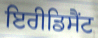
ਇਰੀਡਿਸੈਂਟ